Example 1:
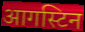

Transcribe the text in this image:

आगस्टिन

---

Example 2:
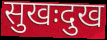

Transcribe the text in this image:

सुखःदुख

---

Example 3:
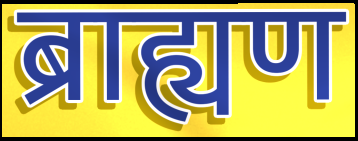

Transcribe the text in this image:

ब्राह्यण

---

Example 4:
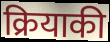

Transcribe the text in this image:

क्रियाकी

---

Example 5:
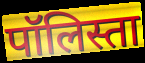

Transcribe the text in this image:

पॉलिस्ता